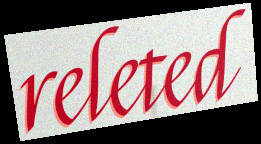
releted